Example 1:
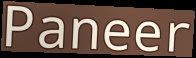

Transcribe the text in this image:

Paneer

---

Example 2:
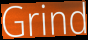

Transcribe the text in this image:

Grind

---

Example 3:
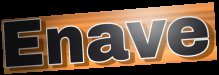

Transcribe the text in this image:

Enave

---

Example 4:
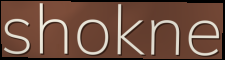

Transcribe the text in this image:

shokne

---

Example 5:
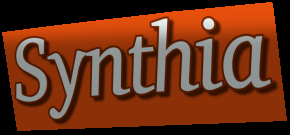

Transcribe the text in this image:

Synthia